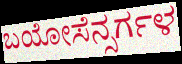
ಬಯೋಸೆನ್ಸರ್ಗಳ